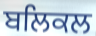
ਬਲਿਕਲ